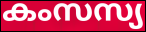
കംസസ്യ